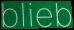
blieb